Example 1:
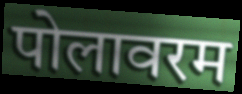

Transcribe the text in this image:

पोलावरम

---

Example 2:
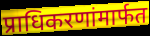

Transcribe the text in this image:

प्राधिकरणांमार्फत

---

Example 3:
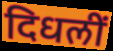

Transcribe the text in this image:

दिधलीं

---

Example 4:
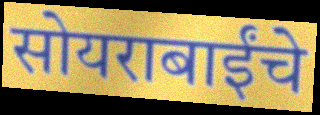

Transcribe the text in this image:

सोयराबाईंचे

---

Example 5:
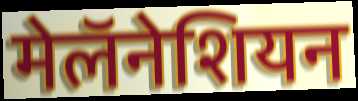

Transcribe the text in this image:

मेलॅनेशियन